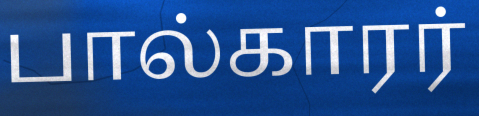
பால்காரர்